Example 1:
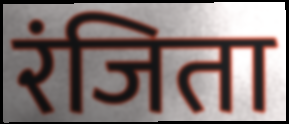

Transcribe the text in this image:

रंजिता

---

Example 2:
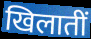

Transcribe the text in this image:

खिलातीं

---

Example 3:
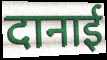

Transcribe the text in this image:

दानाई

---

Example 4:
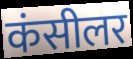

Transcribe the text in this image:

कंसीलर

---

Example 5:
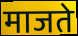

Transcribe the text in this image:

माजते